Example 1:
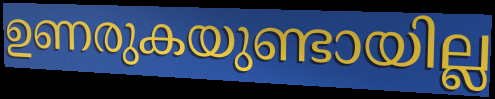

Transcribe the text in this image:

ഉണരുകയുണ്ടായില്ല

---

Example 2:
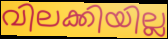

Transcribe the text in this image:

വിലക്കിയില്ല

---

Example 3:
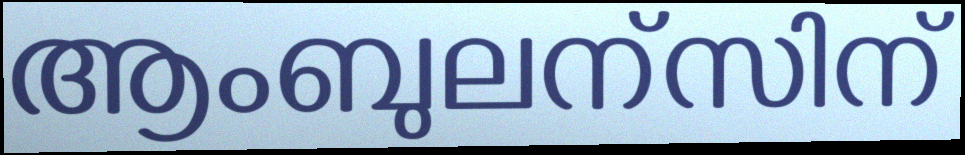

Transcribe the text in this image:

ആംബുലന്സിന്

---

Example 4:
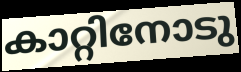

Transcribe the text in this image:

കാറ്റിനോടു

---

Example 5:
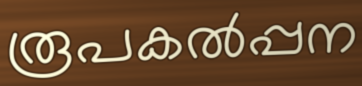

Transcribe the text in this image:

രൂപകൽപ്പന